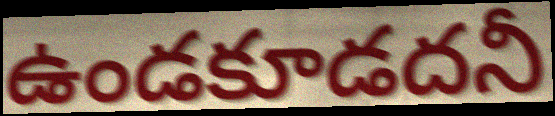
ఉండకూడదనీ